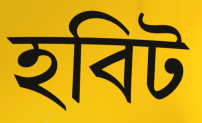
হবিট